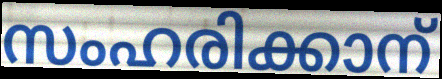
സംഹരിക്കാന്